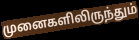
முனைகளிலிருந்தும்